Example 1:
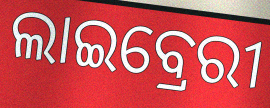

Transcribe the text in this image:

ଲାଇବ୍ରେରୀ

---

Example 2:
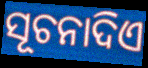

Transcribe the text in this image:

ସୂଚନାଦିଏ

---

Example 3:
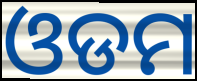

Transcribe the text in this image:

ଓଡମ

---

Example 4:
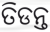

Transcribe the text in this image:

ତିଡନ୍ତ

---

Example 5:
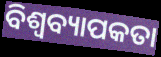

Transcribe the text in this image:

ବିଶ୍ୱବ୍ୟାପକତା